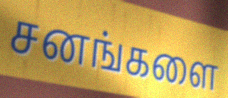
சனங்களை